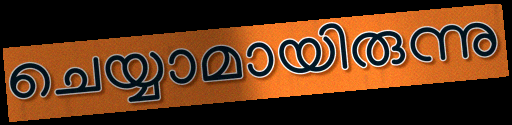
ചെയ്യാമായിരുന്നു